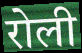
रोली